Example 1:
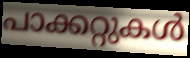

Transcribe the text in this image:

പാക്കറ്റുകൾ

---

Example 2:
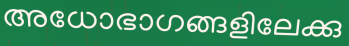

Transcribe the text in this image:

അധോഭാഗങ്ങളിലേക്കു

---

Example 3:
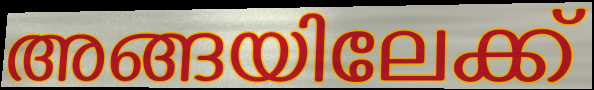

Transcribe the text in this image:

അങ്ങയിലേക്ക്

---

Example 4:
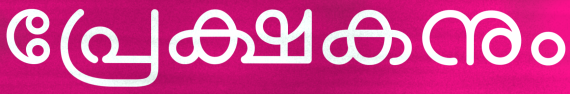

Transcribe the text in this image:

പ്രേക്ഷകനും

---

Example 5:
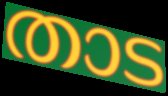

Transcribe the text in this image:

താട